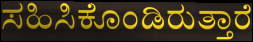
ಸಹಿಸಿಕೊಂಡಿರುತ್ತಾರೆ